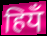
हियँ